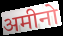
अमीनो